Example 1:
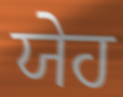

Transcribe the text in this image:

ਯੇਹ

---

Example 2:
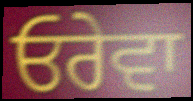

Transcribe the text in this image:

ਓਰੇਵਾ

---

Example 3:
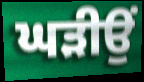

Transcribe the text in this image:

ਘੜੀਉਂ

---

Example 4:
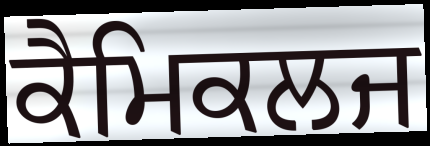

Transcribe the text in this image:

ਕੈਮਿਕਲਜ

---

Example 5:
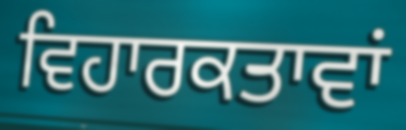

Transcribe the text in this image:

ਵਿਹਾਰਕਤਾਵਾਂ